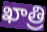
ఖాత్రి